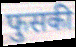
फुसकी